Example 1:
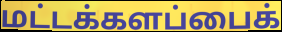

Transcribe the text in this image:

மட்டக்களப்பைக்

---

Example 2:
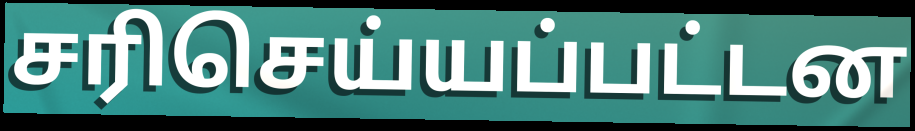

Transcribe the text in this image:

சரிசெய்யப்பட்டன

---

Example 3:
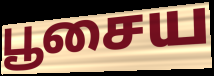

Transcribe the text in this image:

பூசைய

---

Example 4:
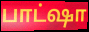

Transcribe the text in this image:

பாட்ஷா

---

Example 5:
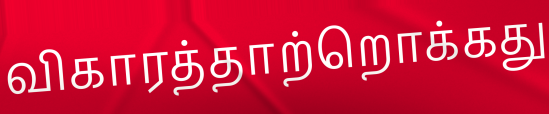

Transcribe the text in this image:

விகாரத்தாற்றொக்கது